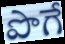
పొగే